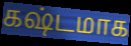
கஷ்டமாக